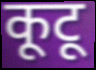
कूटू